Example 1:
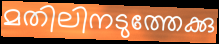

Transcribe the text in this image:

മതിലിനടുത്തേക്കു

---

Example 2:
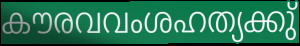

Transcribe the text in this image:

കൗരവവംശഹത്യക്കു്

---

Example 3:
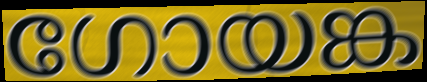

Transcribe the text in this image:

ഗോയങ്ക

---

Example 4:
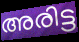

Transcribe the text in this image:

അരിട്ട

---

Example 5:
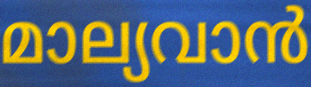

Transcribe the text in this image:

മാല്യവാൻ